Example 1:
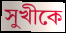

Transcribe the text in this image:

সুখীকে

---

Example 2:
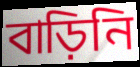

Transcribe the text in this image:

বাড়িনি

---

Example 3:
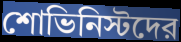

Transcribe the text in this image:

শোভিনিস্টদের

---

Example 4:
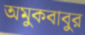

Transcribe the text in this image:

অমুকবাবুর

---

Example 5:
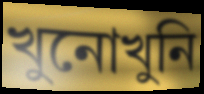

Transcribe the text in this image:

খুনোখুনি